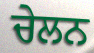
ਚੇਲਨ